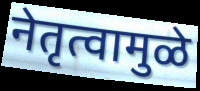
नेतृत्वामुळे